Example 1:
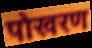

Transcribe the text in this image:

पोखरण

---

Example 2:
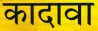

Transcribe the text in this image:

कादावा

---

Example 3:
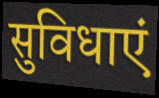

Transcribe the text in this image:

सुविधाएं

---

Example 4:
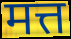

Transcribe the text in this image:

मत्त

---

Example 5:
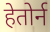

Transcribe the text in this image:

हेतोर्न